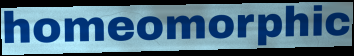
homeomorphic